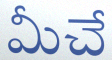
మీచే